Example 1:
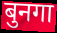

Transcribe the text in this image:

बुनगा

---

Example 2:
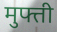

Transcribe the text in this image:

मुफ्ती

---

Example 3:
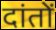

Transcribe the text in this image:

दांतों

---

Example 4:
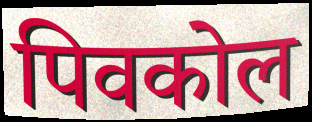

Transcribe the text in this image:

पिवकोल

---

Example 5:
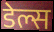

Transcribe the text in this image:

डेल्स